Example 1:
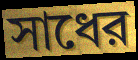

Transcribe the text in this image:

সাধের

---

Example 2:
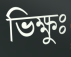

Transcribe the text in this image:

ভিক্ষুঃ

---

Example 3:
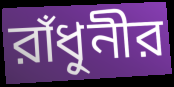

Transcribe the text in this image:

রাঁধুনীর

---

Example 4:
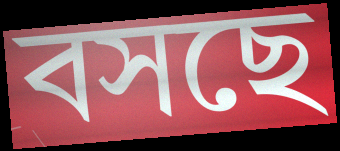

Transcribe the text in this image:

বসছে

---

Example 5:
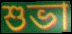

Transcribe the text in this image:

শুভা